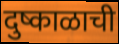
दुष्काळाची